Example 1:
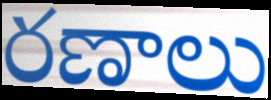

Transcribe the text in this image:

రణాలు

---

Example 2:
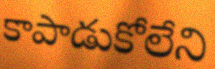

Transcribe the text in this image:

కాపాడుకోలేని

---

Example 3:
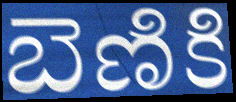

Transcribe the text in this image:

బెణికి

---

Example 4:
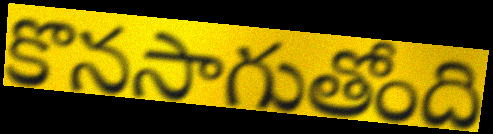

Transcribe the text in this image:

కొనసాగుతోంది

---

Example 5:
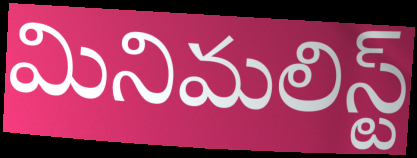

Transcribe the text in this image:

మినిమలిస్ట్